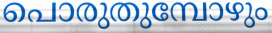
പൊരുതുമ്പോഴും